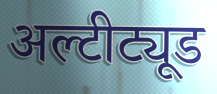
अल्टीट्यूड